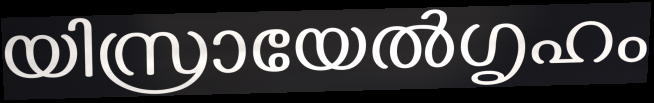
യിസ്രായേൽഗൃഹം